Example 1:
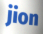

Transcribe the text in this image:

jion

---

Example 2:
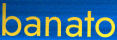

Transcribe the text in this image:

banato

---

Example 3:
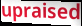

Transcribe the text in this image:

upraised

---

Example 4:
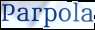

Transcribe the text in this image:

Parpola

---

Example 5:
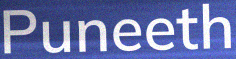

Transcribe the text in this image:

Puneeth